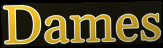
Dames